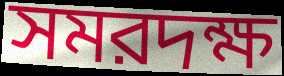
সমরদক্ষ